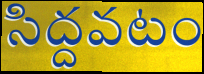
సిద్దవటం